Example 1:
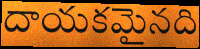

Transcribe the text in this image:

దాయకమైనది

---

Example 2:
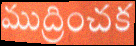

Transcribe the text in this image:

ముద్రించక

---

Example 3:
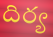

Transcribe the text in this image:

దిర్య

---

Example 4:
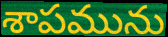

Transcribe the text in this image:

శాపమును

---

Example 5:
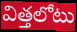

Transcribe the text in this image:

విత్తలోటు